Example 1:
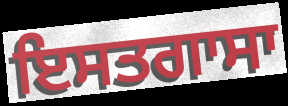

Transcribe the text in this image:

ਇਸਤਗਾਸਾ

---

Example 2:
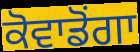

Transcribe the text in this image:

ਕੋਵਾਡੋਂਗਾ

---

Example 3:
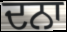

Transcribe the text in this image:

ਦਨਾ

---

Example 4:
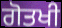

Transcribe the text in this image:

ਗੋਤਖੀ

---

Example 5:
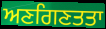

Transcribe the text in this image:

ਅਣਗਿਣਤਤਾ